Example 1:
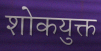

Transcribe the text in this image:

शोकयुक्त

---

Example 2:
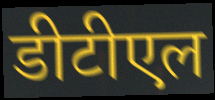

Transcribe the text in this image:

डीटीएल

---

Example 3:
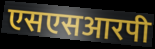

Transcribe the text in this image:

एसएसआरपी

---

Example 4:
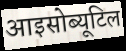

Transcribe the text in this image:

आइसोब्यूटिल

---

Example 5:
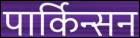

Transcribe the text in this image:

पार्किन्सन